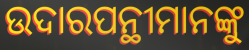
ଉଦାରପନ୍ଥୀମାନଙ୍କୁ